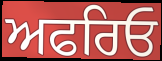
ਅਫਰਿਓ